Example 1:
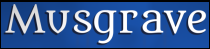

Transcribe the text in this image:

Musgrave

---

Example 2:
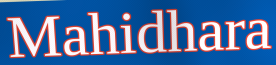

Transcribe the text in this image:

Mahidhara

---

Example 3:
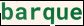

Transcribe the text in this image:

barque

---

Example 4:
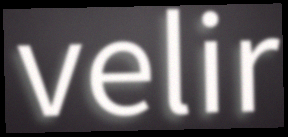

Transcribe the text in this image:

velir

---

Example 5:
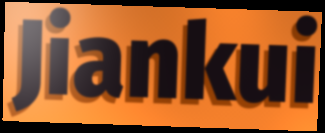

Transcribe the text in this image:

Jiankui